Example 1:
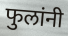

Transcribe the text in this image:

फुलांनी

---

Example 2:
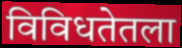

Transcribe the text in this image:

विविधतेतला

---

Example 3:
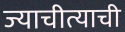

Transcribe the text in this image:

ज्याचीत्याची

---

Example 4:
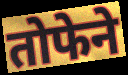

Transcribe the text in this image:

तोफेने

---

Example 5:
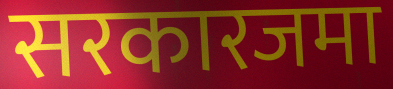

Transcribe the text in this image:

सरकारजमा